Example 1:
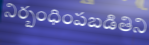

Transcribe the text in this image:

నిర్బంధింపబడితిని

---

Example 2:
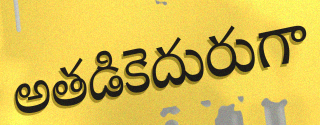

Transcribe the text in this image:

అతడికెదురుగా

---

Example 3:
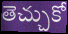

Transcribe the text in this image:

తెచ్చుకో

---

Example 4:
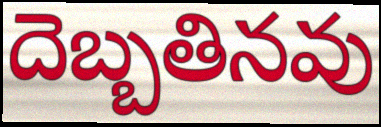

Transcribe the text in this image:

దెబ్బతినవు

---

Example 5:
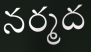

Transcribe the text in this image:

నర్మద